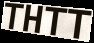
THTT